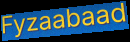
Fyzaabaad